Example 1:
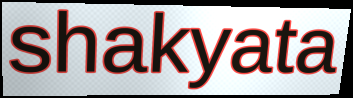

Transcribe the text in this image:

shakyata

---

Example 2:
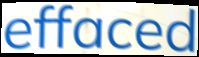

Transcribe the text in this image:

effaced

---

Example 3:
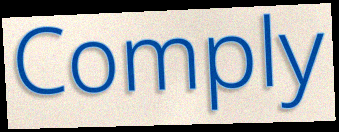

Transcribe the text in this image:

Comply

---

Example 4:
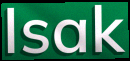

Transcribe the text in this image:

Isak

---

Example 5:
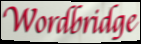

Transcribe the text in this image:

Wordbridge